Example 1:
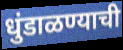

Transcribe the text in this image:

धुंडाळण्याची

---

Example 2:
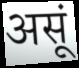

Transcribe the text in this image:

असूं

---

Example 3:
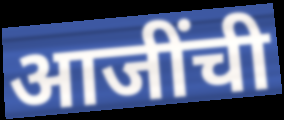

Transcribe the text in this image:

आजींची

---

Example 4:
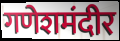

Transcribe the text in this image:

गणेशमंदीर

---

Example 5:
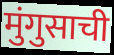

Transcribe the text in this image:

मुंगुसाची